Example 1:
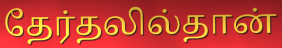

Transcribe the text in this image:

தேர்தலில்தான்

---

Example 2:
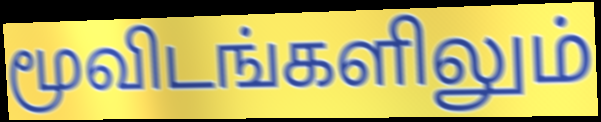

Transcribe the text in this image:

மூவிடங்களிலும்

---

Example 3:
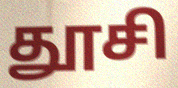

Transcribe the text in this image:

தூசி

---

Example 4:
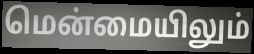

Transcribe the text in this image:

மென்மையிலும்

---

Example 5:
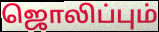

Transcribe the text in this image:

ஜொலிப்பும்